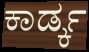
ಕಾರ್ಡ್ಕ